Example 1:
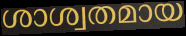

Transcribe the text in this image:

ശാശ്വതമായ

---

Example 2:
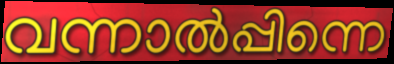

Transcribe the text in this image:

വന്നാൽപ്പിന്നെ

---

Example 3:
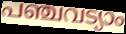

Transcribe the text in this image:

പഞ്ചവട്യാം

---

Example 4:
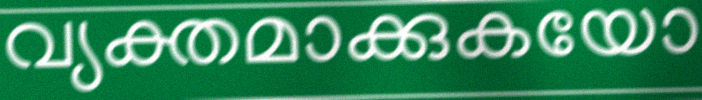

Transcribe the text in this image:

വ്യക്തമാക്കുകയോ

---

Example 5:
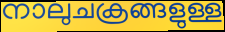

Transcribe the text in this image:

നാലുചക്രങ്ങളുള്ള